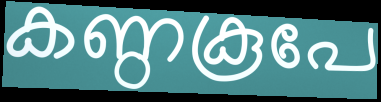
കണ്ഠകൂപേ